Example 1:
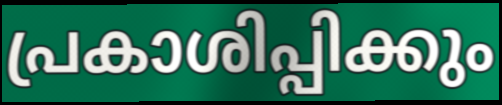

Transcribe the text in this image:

പ്രകാശിപ്പിക്കും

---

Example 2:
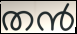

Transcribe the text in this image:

തൻ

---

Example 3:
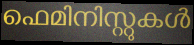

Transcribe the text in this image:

ഫെമിനിസ്റ്റുകൾ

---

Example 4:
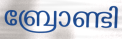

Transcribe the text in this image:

ബ്രോണ്ടി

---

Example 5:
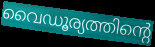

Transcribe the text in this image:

വൈഡൂര്യത്തിന്റെ